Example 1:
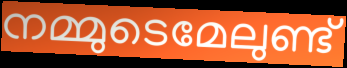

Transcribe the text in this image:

നമ്മുടെമേലുണ്ട്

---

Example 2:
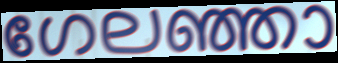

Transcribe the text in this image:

ഗേലഞ്ഞാ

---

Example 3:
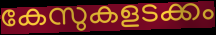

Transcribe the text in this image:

കേസുകളടക്കം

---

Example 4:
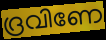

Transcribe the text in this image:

ദ്രവിണേ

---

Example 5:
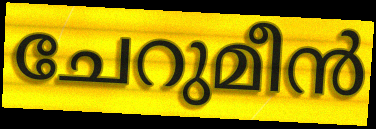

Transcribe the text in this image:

ചേറുമീൻ